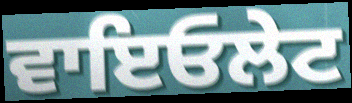
ਵਾਇਓਲੇਟ